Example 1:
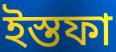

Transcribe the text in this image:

ইস্তফা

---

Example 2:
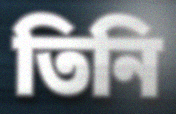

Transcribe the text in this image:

তিনি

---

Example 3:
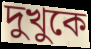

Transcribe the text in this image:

দুখুকে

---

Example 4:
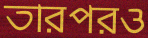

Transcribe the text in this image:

তারপরও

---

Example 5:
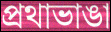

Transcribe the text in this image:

প্রথাভাঙা